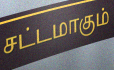
சட்டமாகும்